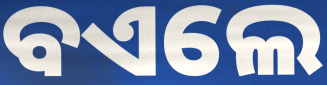
ବଏଲେ